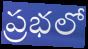
ప్రభలో